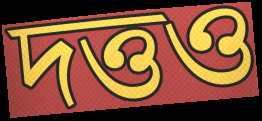
দত্তও